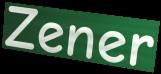
Zener